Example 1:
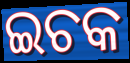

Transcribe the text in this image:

ଇଚକ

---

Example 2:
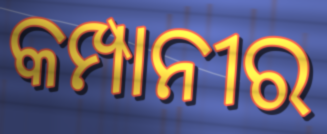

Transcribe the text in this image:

କମ୍ପାନୀର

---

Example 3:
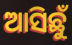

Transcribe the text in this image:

ଆସିଛୁଁ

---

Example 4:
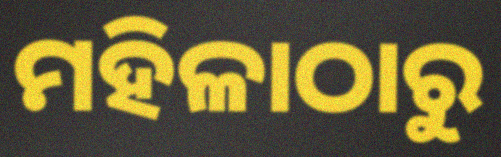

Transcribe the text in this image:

ମହିଳାଠାରୁ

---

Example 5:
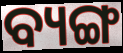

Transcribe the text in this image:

ବ୍ୟଙ୍ଗ